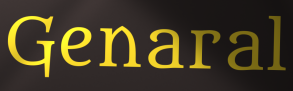
Genaral